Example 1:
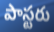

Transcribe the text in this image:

పాస్టరు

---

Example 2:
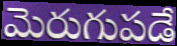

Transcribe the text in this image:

మెరుగుపడే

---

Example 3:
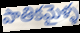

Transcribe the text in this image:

పాతికమైళ్ళ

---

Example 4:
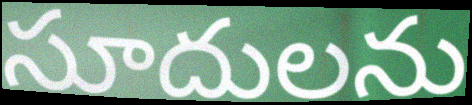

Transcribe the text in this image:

సూదులను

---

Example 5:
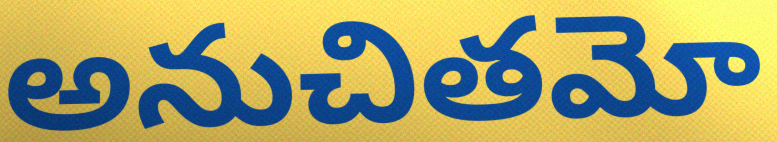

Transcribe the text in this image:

అనుచితమో